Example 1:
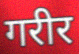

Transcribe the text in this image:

गरीर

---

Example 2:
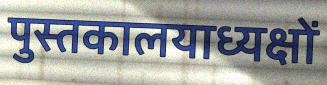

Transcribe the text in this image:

पुस्तकालयाध्यक्षों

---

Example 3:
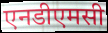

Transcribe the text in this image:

एनडीएमसी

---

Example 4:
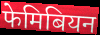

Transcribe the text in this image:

फेमिबियन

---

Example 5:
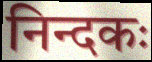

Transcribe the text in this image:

निन्दकः